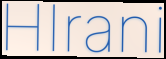
HIrani